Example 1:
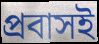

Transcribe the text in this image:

প্রবাসই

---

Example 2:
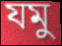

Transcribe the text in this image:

যমু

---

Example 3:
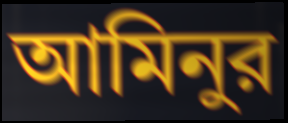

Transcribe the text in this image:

আমিনুর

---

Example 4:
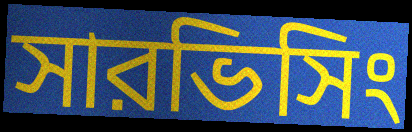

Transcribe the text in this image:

সারভিসিং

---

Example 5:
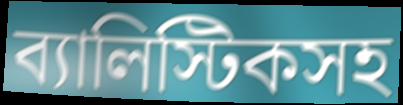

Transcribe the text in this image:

ব্যালিস্টিকসহ